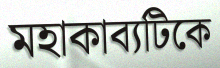
মহাকাব্যটিকে